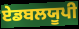
ਏਡਬਲਯੂਪੀ